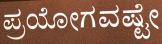
ಪ್ರಯೋಗವಷ್ಟೇ